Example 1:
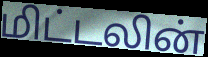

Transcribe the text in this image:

மிட்டலின்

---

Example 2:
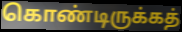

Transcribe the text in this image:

கொண்டிருக்கத்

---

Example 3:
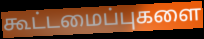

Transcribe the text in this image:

கூட்டமைப்புகளை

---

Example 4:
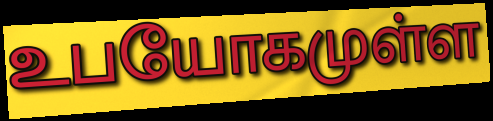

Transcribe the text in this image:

உபயோகமுள்ள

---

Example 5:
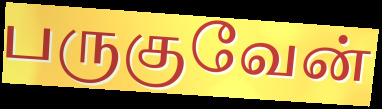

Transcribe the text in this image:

பருகுவேன்